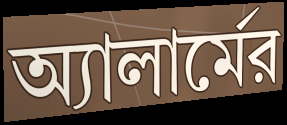
অ্যালার্মের